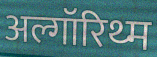
अल्गॉरिथ्म